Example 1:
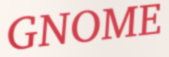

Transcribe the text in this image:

GNOME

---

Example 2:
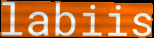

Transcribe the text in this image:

labiis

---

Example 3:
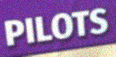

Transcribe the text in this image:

PILOTS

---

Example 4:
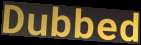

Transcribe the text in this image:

Dubbed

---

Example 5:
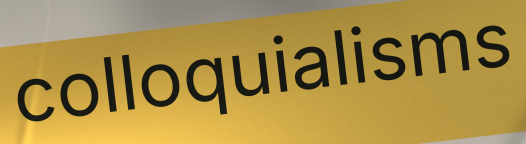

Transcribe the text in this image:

colloquialisms